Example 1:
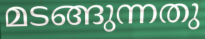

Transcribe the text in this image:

മടങ്ങുന്നതു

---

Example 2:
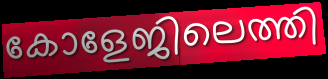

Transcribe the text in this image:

കോളേജിലെത്തി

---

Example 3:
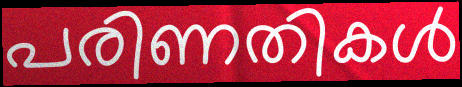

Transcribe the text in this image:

പരിണതികൾ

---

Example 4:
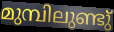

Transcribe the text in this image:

മുമ്പിലുണ്ടു്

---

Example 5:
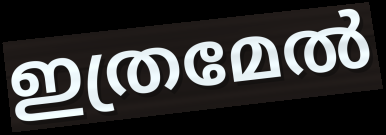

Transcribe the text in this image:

ഇത്രമേൽ